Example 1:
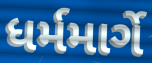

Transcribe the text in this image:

ધર્મમાર્ગે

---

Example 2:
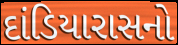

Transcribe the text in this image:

દાંડિયારાસનો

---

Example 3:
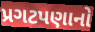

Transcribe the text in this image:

પ્રગટપણાનો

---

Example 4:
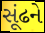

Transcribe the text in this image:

સૂંઢને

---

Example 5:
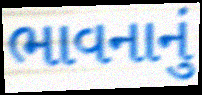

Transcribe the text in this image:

ભાવનાનું